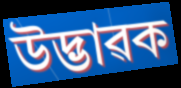
উদ্ভাৱক